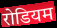
रोडियम